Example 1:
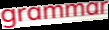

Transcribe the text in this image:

grammar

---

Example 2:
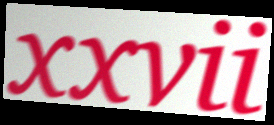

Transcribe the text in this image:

xxvii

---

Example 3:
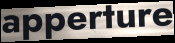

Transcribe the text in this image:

apperture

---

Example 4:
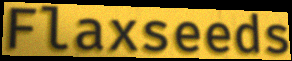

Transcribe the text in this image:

Flaxseeds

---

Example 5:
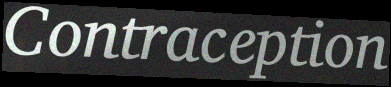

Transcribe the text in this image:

Contraception